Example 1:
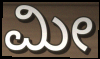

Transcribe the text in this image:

ಮೀ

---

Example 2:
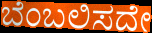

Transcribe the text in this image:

ಬೆಂಬಲಿಸದೇ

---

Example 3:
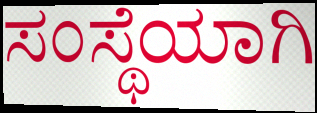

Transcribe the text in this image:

ಸಂಸ್ಥೆಯಾಗಿ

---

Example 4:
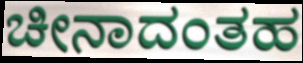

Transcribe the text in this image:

ಚೀನಾದಂತಹ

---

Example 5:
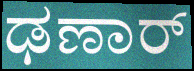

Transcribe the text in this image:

ಢಣಾರ್